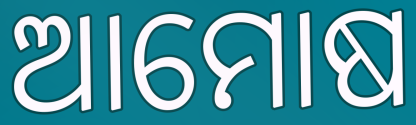
ଆମୋଷ